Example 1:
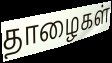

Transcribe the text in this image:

தாழைகள்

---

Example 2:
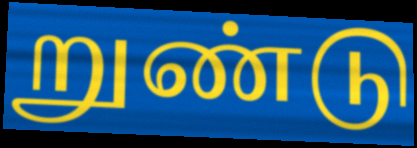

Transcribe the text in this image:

றுண்டு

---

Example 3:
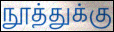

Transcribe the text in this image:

நூத்துக்கு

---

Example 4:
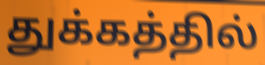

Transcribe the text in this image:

துக்கத்தில்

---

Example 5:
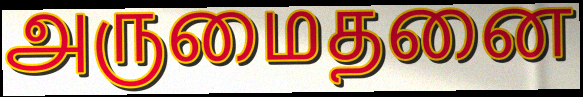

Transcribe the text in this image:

அருமைதனை